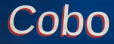
Cobo